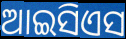
ଆଇସିଏସ